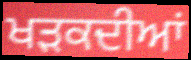
ਖੜਕਦੀਆਂ